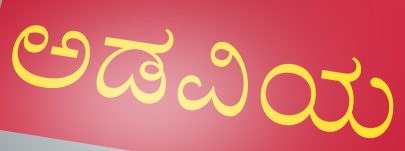
ಅಡವಿಯ